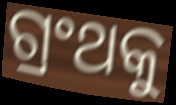
ଗ୍ରଂଥକୁ